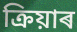
ক্ৰিয়াৰ